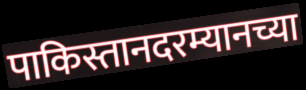
पाकिस्तानदरम्यानच्या